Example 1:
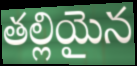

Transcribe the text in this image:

తల్లియైన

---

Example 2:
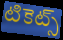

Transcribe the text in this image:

టికెట్స్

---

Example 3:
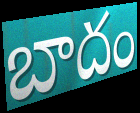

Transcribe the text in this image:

బాదం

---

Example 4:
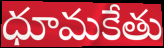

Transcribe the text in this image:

ధూమకేతు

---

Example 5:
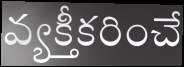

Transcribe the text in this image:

వ్యక్తీకరించే